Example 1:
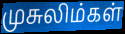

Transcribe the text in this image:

முசுலிம்கள்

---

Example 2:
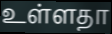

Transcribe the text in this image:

உள்ளதா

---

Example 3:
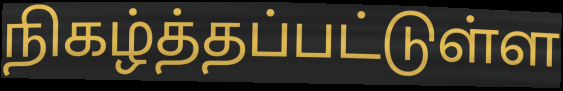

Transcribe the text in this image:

நிகழ்த்தப்பட்டுள்ள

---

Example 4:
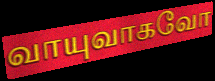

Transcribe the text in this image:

வாயுவாகவோ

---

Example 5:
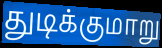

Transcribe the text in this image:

துடிக்குமாறு